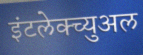
इंटलेक्च्युअल